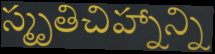
స్మృతిచిహ్నాన్ని